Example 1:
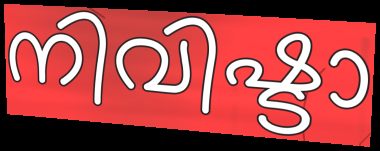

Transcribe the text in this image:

നിവിഷ്ടാ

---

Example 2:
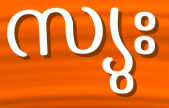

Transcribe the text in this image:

സ്യുഃ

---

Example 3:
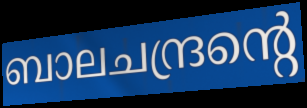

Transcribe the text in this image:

ബാലചന്ദ്രന്റെ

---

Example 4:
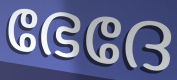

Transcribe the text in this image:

ഭേദേ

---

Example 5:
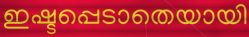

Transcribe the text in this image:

ഇഷ്ടപ്പെടാതെയായി